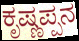
ಕೃಷ್ಣಪ್ಪನ